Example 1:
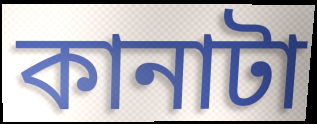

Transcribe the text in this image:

কানাটা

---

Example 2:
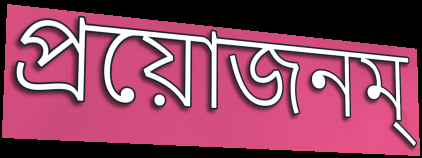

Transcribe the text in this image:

প্রয়োজনম্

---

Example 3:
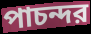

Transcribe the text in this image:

পাচন্দর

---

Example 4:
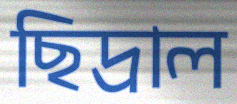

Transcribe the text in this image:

ছিদ্রাল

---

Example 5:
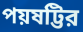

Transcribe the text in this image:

পয়ষট্টির